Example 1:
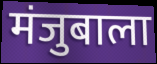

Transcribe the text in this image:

मंजुबाला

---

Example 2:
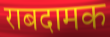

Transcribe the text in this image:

राबदामक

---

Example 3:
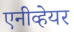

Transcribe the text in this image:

एनीव्हेयर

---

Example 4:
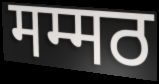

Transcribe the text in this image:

मम्मठ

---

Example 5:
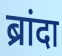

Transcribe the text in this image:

ब्रांदा